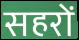
सहरों